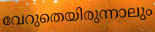
വേറുതെയിരുന്നാലും